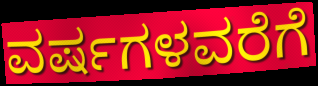
ವರ್ಷಗಳವರೆಗೆ